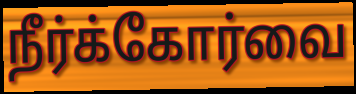
நீர்க்கோர்வை